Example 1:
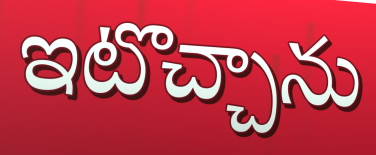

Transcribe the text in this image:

ఇటొచ్చాను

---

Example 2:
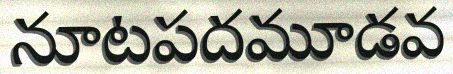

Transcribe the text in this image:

నూటపదమూడవ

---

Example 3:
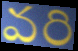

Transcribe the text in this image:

వరి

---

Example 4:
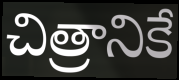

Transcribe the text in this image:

చిత్రానికే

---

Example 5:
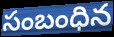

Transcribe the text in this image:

సంబంధిన